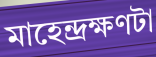
মাহেন্দ্রক্ষণটা